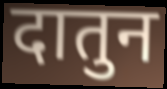
दातुन